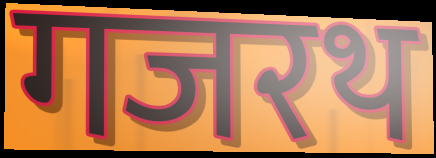
गजरथ